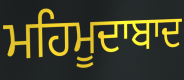
ਮਹਿਮੂਦਾਬਾਦ